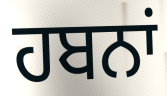
ਹਬਨਾਂ